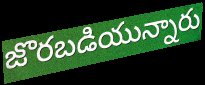
జొరబడియున్నారు